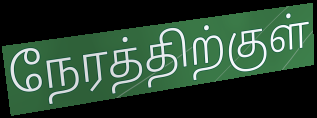
நேரத்திற்குள்